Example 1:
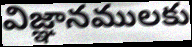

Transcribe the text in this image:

విజ్ఞానములకు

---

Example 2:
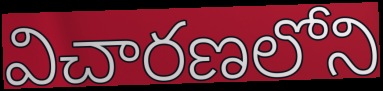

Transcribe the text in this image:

విచారణలోని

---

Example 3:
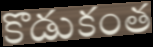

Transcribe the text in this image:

కొడుకంత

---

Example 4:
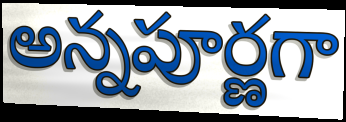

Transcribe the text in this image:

అన్నపూర్ణగా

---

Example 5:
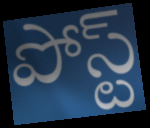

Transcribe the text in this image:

పోస్ట్